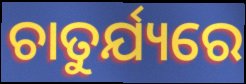
ଚାତୁର୍ଯ୍ୟରେ